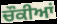
ਚੌਕੀਆਂ